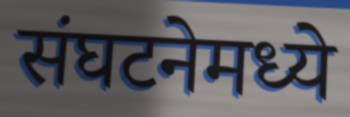
संघटनेमध्ये